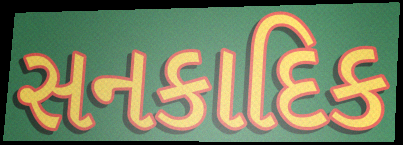
સનકાદિક